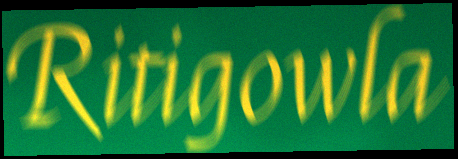
Ritigowla